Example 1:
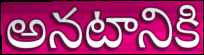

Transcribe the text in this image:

అనటానికి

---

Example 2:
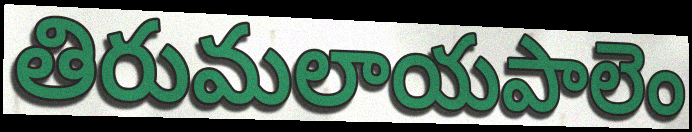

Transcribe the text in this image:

తిరుమలాయపాలెం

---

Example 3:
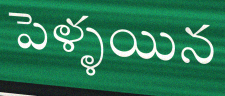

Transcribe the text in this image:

పెళ్ళయిన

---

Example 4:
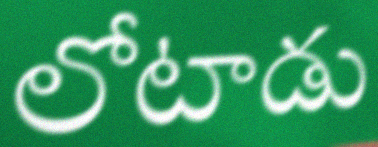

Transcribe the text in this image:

లోటాడు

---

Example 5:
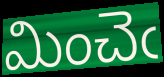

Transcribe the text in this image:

మించెఁ